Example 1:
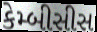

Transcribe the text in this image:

કેમ્બીસીસ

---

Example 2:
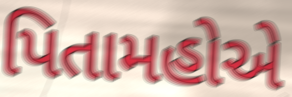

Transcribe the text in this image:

પિતામહોએ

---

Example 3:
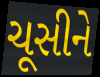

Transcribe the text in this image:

ચૂસીને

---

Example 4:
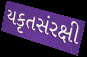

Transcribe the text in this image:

યકૃતસંરક્ષી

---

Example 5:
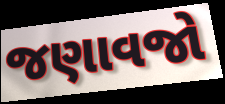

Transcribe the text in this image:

જણાવજો